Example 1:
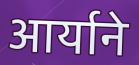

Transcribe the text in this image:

आर्याने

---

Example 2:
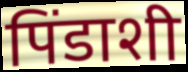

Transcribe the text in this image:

पिंडाशी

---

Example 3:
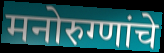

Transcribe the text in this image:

मनोरुग्णांचे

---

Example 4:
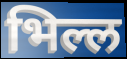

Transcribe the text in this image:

भिल्ल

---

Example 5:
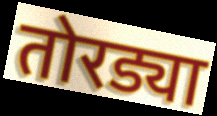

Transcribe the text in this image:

तोरड्या